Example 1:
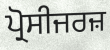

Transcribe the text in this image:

ਪ੍ਰੋਸੀਜਰਜ਼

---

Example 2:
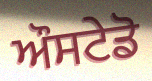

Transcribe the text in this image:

ਔਸਟੇਡੋ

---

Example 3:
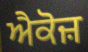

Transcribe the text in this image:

ਐਕੋਜ਼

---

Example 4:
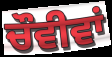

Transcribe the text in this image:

ਚੌਵੀਵਾਂ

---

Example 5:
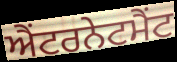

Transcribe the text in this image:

ਐਂਟਰਨੇਟਮੈਂਟ